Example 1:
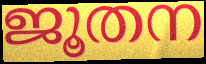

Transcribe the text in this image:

ജൂതന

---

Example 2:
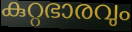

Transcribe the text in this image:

കുറ്റഭാരവും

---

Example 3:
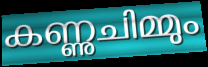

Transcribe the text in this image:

കണ്ണുചിമ്മും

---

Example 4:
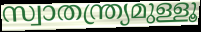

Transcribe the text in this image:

സ്വാതന്ത്ര്യമുള്ളൂ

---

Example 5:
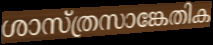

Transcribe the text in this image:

ശാസ്ത്രസാങ്കേതിക